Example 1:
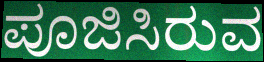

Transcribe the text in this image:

ಪೂಜಿಸಿರುವ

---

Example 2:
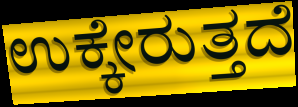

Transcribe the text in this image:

ಉಕ್ಕೇರುತ್ತದೆ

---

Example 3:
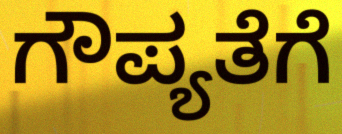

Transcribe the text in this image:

ಗೌಪ್ಯತೆಗೆ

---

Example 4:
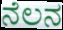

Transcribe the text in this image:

ನೆಲನ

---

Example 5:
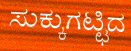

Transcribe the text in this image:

ಸುಕ್ಕುಗಟ್ಟಿದ